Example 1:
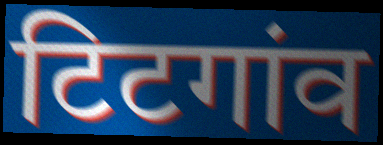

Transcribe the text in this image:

टिटगांव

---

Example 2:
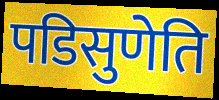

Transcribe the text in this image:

पडिसुणेति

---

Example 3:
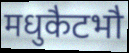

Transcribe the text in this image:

मधुकैटभौ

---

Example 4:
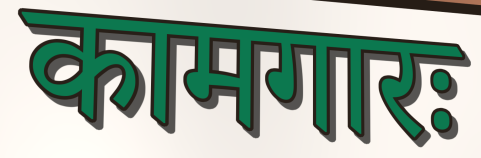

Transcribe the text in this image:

कामगारः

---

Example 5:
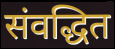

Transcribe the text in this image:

संवद्धित